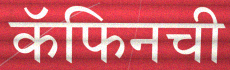
कॅफिनची